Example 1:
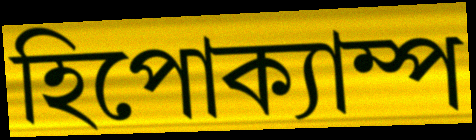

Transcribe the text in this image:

হিপোক্যাম্প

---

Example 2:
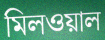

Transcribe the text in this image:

মিলওয়াল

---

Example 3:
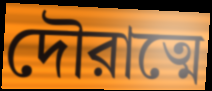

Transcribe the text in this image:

দৌরাত্মে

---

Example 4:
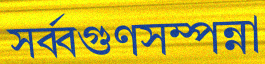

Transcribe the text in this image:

সর্ব্বগুণসম্পন্না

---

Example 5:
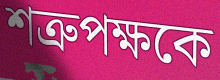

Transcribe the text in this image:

শত্রুপক্ষকে